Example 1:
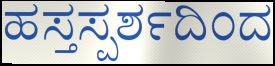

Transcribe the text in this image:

ಹಸ್ತಸ್ಪರ್ಶದಿಂದ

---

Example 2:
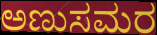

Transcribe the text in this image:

ಅಣುಸಮರ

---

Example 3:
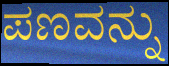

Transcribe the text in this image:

ಪಣವನ್ನು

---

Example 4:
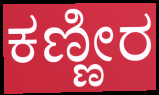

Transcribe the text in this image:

ಕಣ್ಣೀರ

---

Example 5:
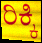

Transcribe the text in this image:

ರಿಕ್ಕಿ